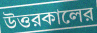
উত্তরকালের